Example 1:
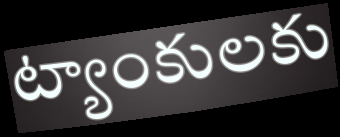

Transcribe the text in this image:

ట్యాంకులకు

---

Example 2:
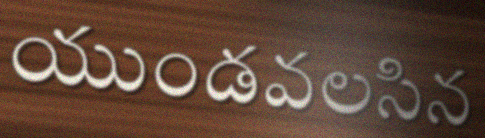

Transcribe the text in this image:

యుండవలసిన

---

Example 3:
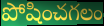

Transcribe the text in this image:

పోషించగలం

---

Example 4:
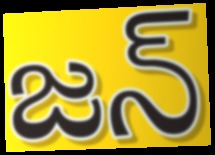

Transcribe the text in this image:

జన్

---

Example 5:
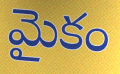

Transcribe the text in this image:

మైకం